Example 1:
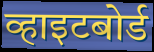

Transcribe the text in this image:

व्हाइटबोर्ड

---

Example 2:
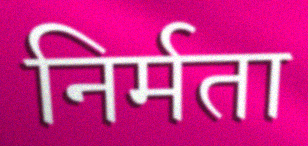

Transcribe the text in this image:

निर्मता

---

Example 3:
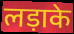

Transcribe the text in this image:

लड़ाके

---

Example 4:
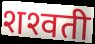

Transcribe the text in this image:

शश्वती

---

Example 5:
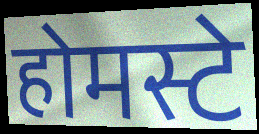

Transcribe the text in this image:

होमस्टे